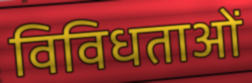
विविधताओं